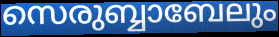
സെരുബ്ബാബേലും